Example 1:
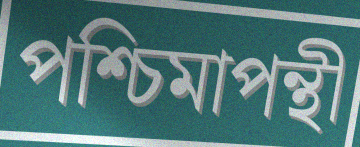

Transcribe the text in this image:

পশ্চিমাপন্থী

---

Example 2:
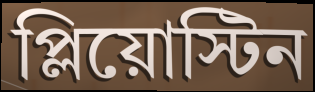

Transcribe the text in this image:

প্লিয়োস্টিন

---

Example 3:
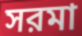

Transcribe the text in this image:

সরমা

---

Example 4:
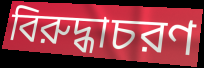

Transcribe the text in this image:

বিরুদ্ধাচরণ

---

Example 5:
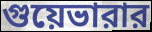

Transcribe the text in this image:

গুয়েভারার